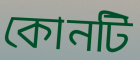
কোনটি